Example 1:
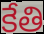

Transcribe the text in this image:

కేతి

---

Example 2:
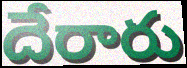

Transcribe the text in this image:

దేరారు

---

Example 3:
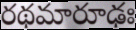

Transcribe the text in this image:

రథమారూఢః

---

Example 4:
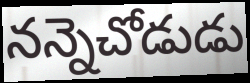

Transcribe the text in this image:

నన్నెచోడుడు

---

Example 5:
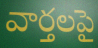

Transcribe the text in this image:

వార్తలపై